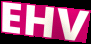
EHV